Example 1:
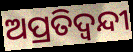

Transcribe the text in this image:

ଅପ୍ରତିଦ୍ବନ୍ଦୀ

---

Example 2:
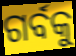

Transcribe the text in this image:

ଗର୍ବକୁ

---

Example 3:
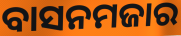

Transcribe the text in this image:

ବାସନମଜାର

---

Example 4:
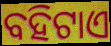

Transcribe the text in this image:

ବହିଟାଏ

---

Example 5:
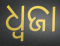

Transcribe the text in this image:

ଧ୍ୱଜା